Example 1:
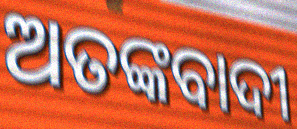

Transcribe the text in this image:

ଅତଙ୍କବାଦୀ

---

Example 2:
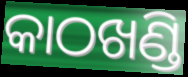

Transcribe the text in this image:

କାଠଖଣ୍ଡି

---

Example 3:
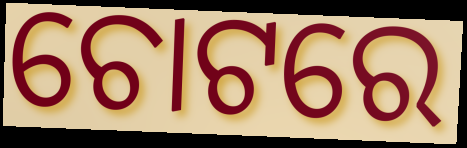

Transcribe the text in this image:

ଚୋଟରେ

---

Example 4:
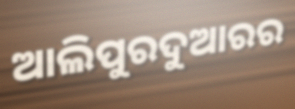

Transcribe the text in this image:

ଆଲିପୁରଦୁଆରର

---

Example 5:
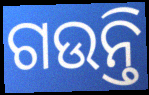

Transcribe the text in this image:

ଗଉନ୍ତି